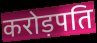
करोड़पति